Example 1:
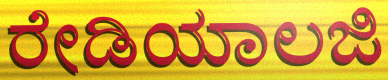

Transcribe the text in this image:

ರೇಡಿಯಾಲಜಿ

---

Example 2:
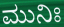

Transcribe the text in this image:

ಮುನಿಃ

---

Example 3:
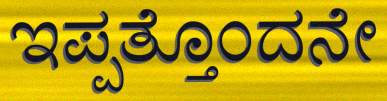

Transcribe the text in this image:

ಇಪ್ಪತ್ತೊಂದನೇ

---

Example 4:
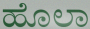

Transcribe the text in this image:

ಹೊಲಾ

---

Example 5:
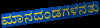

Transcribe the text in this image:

ಮಾನದಂಡಗಳನತು